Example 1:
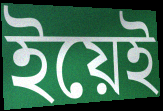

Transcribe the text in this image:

ইয়েই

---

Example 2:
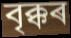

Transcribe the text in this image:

বৃক্কৰ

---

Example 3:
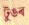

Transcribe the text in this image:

টুঙৰ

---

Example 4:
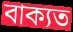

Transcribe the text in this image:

বাক্যত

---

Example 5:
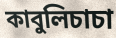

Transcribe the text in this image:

কাবুলিচাচা